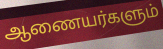
ஆணையர்களும்